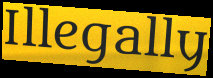
Illegally